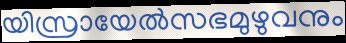
യിസ്രായേൽസഭമുഴുവനും